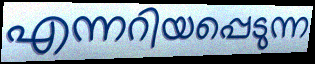
എന്നറിയപ്പെടുന്ന